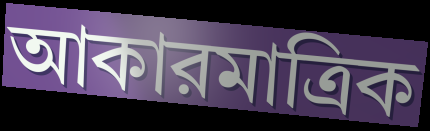
আকারমাত্রিক